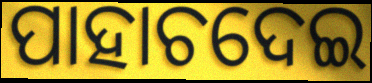
ପାହାଚଦେଇ